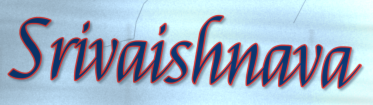
Srivaishnava